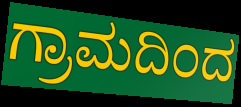
ಗ್ರಾಮದಿಂದ